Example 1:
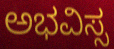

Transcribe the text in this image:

ಅಭವಿಸ್ಸ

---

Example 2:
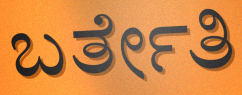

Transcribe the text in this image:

ಬರ್ತೇತಿ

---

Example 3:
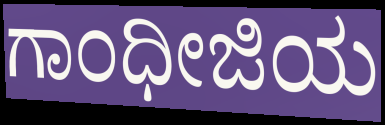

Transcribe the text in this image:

ಗಾಂಧೀಜಿಯ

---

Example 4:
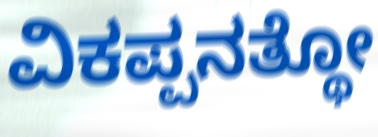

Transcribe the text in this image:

ವಿಕಪ್ಪನತ್ಥೋ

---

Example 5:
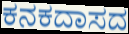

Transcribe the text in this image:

ಕನಕದಾಸದ